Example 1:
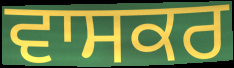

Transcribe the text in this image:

ਵਾਸਕਰ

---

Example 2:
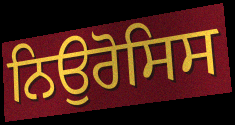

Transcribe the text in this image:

ਨਿਉਰੋਸਿਸ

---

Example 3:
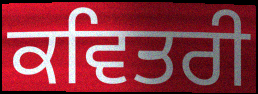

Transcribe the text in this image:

ਕਵਿਤਰੀ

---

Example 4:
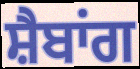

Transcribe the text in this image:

ਸ਼ੈਬਾਂਗ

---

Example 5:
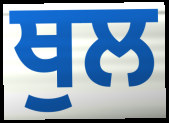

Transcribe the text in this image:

ਥੁਲ